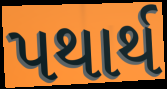
પથાર્થ